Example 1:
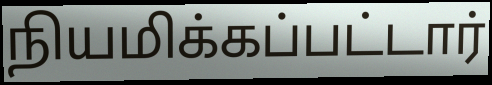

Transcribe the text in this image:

நியமிக்கப்பட்டார்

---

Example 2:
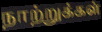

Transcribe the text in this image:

நாற்றுக்கள்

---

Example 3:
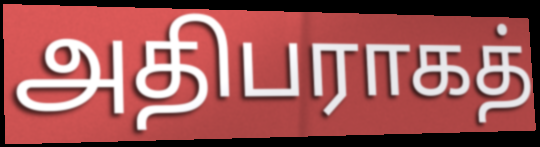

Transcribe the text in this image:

அதிபராகத்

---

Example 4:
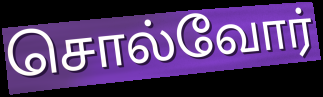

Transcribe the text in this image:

சொல்வோர்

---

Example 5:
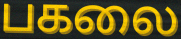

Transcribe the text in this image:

பகலை